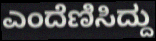
ಎಂದೆಣಿಸಿದ್ದು